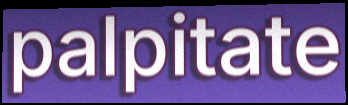
palpitate